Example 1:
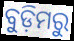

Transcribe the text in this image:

ବୁଡ଼ିମରୁ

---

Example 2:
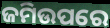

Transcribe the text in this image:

ଜମିଉପରେ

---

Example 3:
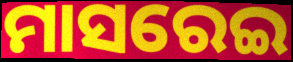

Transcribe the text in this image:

ମାସରେଇ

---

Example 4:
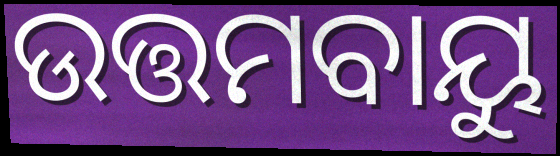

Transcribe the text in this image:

ଉତ୍ତମବାୟୁ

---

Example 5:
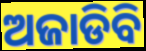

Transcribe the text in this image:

ଅଜାଡିବି